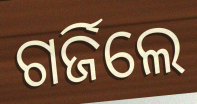
ଗର୍ଜିଲେ